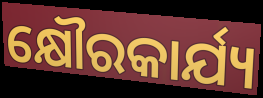
କ୍ଷୌରକାର୍ଯ୍ୟ